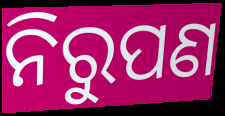
ନିରୁପଣ